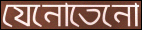
যেনোতেনো